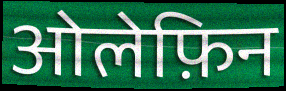
ओलेफ़िन